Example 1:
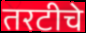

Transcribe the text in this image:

तरटीचे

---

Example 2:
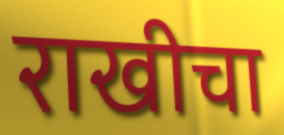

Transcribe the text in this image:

राखीचा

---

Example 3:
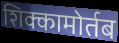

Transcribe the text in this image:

शिक्कामोर्तब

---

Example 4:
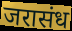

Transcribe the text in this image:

जरासंध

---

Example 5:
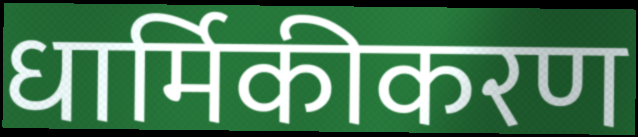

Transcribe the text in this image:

धार्मिकीकरण